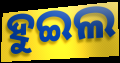
ହୁଇଲ